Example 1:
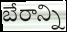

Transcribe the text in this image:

బేరాన్ని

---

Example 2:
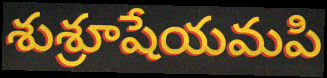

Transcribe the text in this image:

శుశ్రూషేయమపి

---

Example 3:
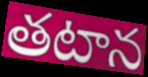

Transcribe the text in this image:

తటాన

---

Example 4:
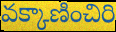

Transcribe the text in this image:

వక్కాణించిరి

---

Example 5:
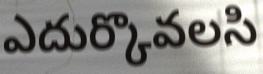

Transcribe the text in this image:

ఎదుర్కొవలసి